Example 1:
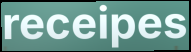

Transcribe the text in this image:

receipes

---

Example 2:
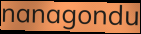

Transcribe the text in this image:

nanagondu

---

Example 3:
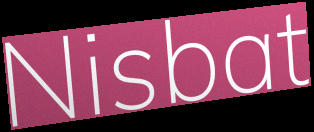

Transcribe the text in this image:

Nisbat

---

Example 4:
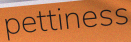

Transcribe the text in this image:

pettiness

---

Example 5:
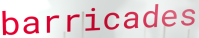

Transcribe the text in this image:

barricades